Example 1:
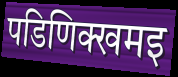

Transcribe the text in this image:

पडिणिक्खमइ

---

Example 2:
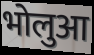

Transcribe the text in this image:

भोलुआ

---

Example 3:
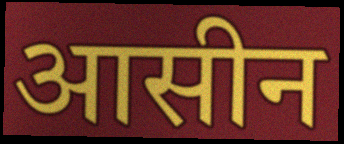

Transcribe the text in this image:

आसीन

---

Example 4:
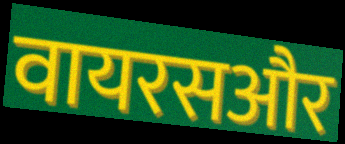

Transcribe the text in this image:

वायरसऔर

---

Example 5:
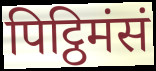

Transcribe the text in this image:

पिट्ठिमंसं